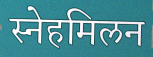
स्नेहमिलन